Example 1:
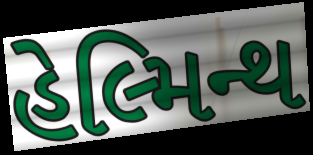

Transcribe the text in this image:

હેલ્મિન્થ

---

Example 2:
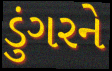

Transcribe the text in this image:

ડુંગરને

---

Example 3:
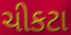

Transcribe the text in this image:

ચીકટા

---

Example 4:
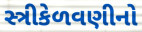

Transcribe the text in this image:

સ્ત્રીકેળવણીનો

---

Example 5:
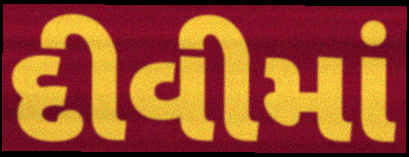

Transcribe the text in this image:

દીવીમાં